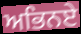
ਅਭਿਨਏ